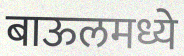
बाऊलमध्ये